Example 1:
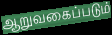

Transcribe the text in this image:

ஆறுவகைப்படும்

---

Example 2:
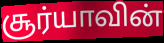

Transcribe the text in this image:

சூர்யாவின்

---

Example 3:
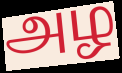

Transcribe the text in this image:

அழ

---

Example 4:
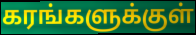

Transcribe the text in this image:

கரங்களுக்குள்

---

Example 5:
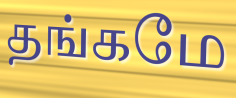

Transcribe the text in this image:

தங்கமே